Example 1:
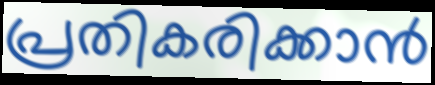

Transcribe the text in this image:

പ്രതികരിക്കാൻ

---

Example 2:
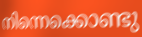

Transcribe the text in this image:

നിന്നെക്കൊണ്ടു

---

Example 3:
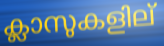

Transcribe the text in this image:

ക്ലാസുകളില്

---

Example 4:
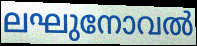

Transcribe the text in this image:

ലഘുനോവൽ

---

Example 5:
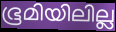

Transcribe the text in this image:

ഭൂമിയിലില്ല